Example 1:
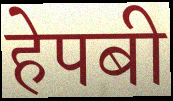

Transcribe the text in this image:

हेपबी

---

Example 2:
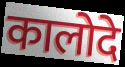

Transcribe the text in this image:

कालोदे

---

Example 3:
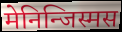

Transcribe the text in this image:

मेनिन्जिस्मस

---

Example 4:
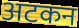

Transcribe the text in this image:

अटकन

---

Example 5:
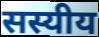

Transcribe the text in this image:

सस्यीय